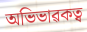
অভিভাৱকত্ব